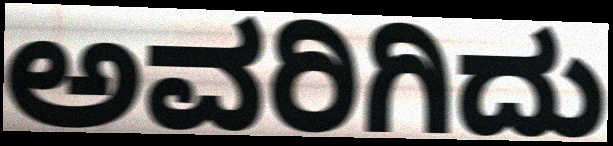
ಅವರಿಗಿದು